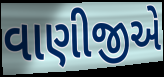
વાણીજીએ